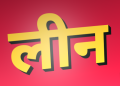
लीन